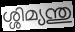
ശ്ശിമ്യന്തു